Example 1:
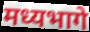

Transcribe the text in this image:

मध्यभागे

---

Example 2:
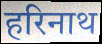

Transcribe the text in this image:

हरिनाथ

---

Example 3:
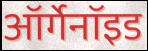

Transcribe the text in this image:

ऑर्गेनॉइड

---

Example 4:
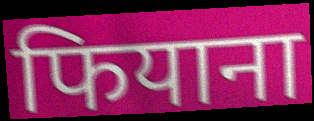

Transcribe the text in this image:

फियाना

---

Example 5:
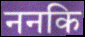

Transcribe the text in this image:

ननकि